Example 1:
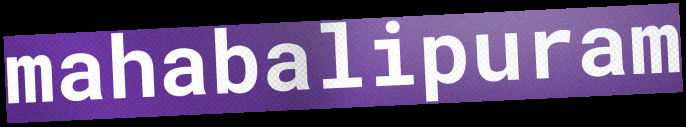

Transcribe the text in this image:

mahabalipuram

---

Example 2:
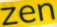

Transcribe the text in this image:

zen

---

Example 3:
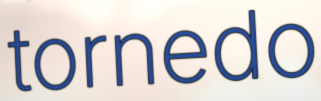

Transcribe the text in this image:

tornedo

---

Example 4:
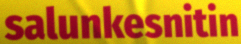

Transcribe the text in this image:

salunkesnitin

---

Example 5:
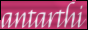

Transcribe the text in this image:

antarthi